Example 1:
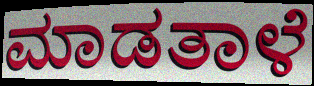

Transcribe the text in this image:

ಮಾಡತಾಳೆ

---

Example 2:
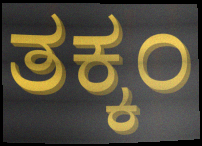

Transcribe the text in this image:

ತಕ್ಕಂ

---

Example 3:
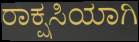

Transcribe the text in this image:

ರಾಕ್ಷಸಿಯಾಗಿ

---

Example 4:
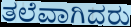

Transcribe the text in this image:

ತಲೆವಾಗಿದರು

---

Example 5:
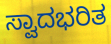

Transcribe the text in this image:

ಸ್ವಾದಭರಿತ